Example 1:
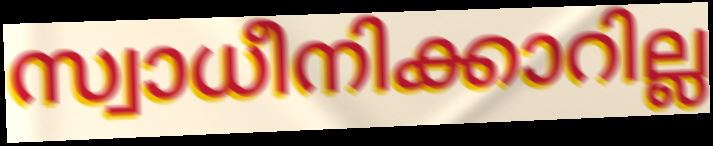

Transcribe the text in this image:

സ്വാധീനിക്കാറില്ല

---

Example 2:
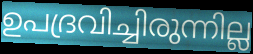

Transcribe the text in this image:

ഉപദ്രവിച്ചിരുന്നില്ല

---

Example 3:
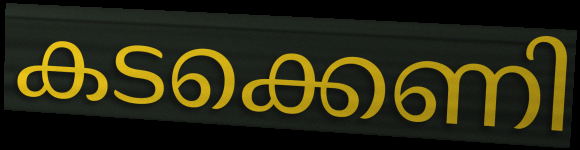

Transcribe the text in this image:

കടക്കെണി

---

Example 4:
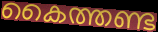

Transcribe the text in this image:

കൈത്തണ്ട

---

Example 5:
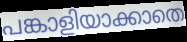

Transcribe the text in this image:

പങ്കാളിയാക്കാതെ